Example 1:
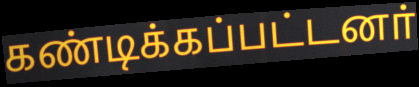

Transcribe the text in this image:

கண்டிக்கப்பட்டனர்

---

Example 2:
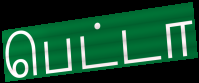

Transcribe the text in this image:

பெட்டா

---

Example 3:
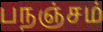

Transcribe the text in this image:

பநஞ்சம்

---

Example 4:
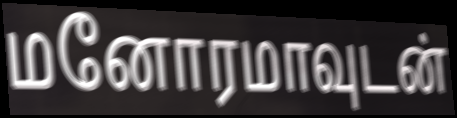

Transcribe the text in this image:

மனோரமாவுடன்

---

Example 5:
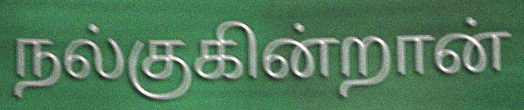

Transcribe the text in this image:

நல்குகின்றான்